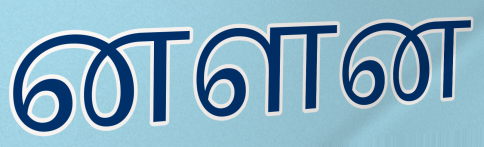
னளன